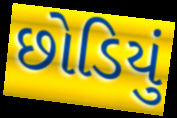
છોડિયું